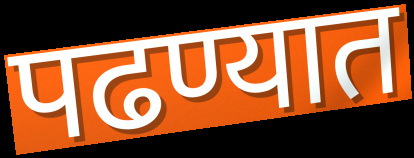
पढण्यात